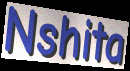
Nshita